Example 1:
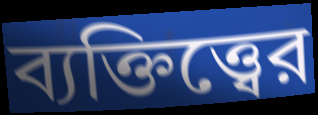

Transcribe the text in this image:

ব্যক্তিত্ত্বের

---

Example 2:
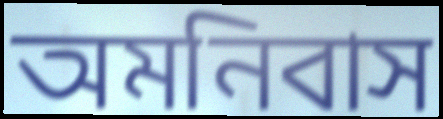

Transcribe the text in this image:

অমনিবাস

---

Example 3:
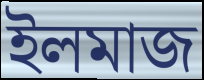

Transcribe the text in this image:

ইলমাজ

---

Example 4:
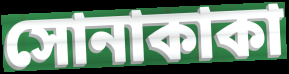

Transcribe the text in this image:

সোনাকাকা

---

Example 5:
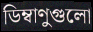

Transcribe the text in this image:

ডিম্বাণুগুলো